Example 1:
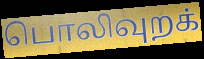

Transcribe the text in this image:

பொலிவுறக்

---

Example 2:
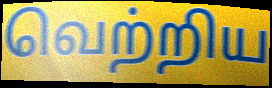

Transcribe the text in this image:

வெற்றிய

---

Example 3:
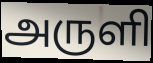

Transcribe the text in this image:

அருளி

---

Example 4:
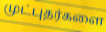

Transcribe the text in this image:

முட்புதர்களை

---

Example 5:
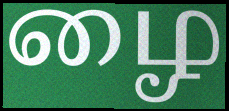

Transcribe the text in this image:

ழை